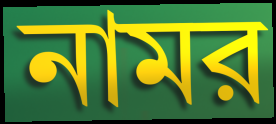
নামর